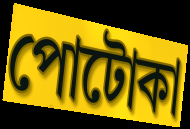
পোটোকা